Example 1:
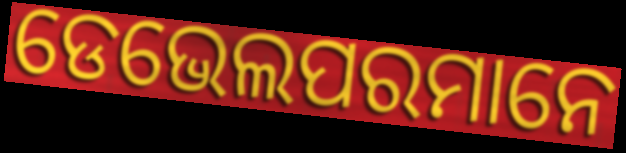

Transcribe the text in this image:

ଡେଭେଲପରମାନେ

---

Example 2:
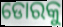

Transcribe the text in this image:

ଡୋରକୁ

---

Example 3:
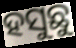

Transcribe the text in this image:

ହସୁଛୁ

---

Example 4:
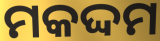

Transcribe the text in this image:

ମକଦ୍ଦମ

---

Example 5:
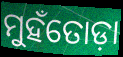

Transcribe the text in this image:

ମୁହଁତୋଡ଼ା